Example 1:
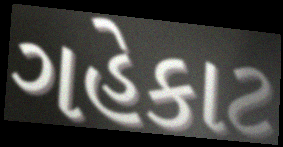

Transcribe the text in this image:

ગહેકાટ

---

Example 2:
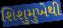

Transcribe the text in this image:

શિશુમુખેથી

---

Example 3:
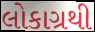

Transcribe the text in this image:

લોકાગ્રથી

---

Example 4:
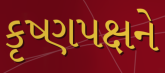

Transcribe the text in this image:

કૃષ્ણપક્ષને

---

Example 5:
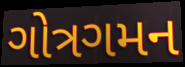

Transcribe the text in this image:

ગોત્રગમન